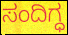
ಸಂದಿಗ್ಧ